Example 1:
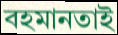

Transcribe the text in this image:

বহমানতাই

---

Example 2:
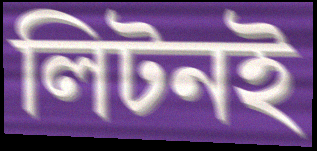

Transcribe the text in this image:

লিটনই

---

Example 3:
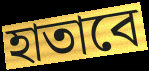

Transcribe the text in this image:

হাতাবে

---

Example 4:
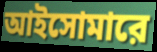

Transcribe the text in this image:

আইসোমারে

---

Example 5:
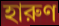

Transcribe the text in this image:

হারুণ